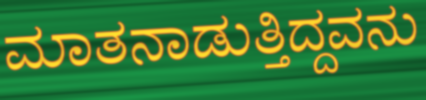
ಮಾತನಾಡುತ್ತಿದ್ದವನು